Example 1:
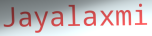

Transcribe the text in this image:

Jayalaxmi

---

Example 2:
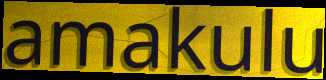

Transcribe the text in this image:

amakulu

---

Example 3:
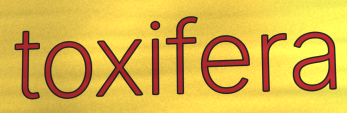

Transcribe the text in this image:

toxifera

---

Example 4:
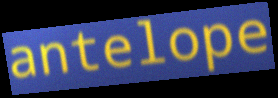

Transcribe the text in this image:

antelope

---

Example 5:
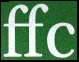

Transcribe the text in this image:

ffc